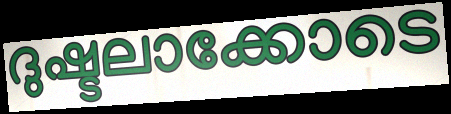
ദുഷ്ടലാക്കോടെ